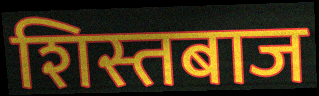
शिस्तबाज